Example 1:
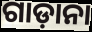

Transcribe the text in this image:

ଗାଡ଼ାନା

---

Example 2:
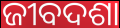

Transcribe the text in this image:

ଜୀବଦଶା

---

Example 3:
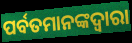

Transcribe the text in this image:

ପର୍ବତମାନଙ୍କଦ୍ଵାରା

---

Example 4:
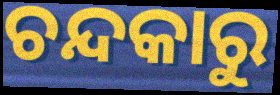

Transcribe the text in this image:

ଚନ୍ଦକାରୁ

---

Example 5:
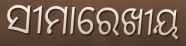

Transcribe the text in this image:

ସୀମାରେଖୀୟ